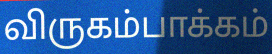
விருகம்பாக்கம்